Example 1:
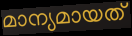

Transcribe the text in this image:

മാന്യമായത്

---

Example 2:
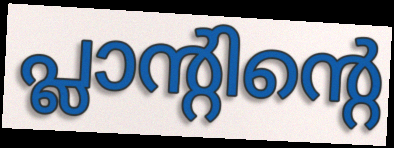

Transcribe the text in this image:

പ്ലാന്റിന്റെ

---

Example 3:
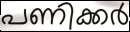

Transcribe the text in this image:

പണിക്കർ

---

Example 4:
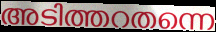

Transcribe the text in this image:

അടിത്തറതന്നെ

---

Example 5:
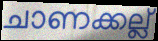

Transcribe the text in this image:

ചാണക്കല്ല്